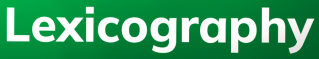
Lexicography